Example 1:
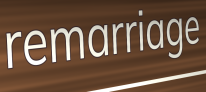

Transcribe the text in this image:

remarriage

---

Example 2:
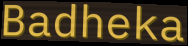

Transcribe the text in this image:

Badheka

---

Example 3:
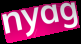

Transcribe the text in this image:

nyag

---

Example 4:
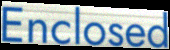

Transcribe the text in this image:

Enclosed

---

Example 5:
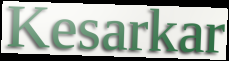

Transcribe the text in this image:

Kesarkar